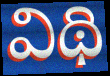
విథి